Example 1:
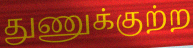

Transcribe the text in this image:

துணுக்குற்ற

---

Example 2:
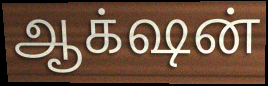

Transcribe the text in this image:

ஆக்‌ஷன்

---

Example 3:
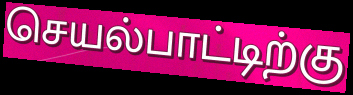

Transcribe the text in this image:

செயல்பாட்டிற்கு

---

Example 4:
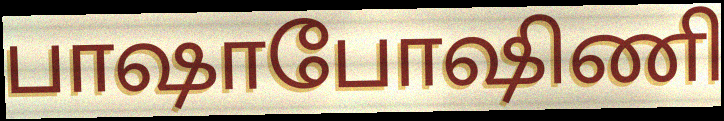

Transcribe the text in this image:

பாஷாபோஷிணி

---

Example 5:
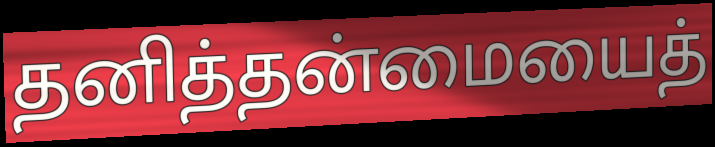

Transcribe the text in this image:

தனித்தன்மையைத்